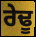
ਰੇਢੂ